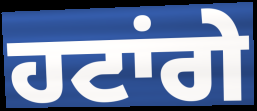
ਹਟਾਂਗੇ